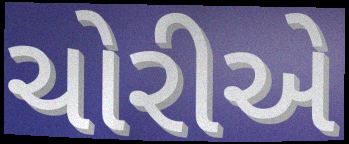
ચોરીએ